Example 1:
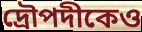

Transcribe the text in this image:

দ্রৌপদীকেও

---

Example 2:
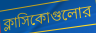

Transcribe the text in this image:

ক্লাসিকোগুলোর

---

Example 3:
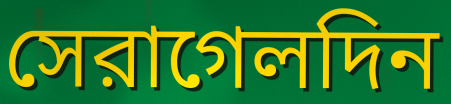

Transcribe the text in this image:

সেরাগেলদিন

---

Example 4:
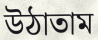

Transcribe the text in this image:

উঠাতাম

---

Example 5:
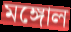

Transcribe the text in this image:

মঙ্গোল